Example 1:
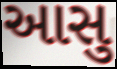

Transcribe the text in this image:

આસુ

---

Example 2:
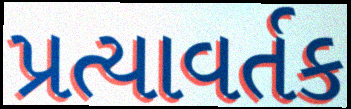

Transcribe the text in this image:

પ્રત્યાવર્તક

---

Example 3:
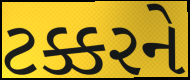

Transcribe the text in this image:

ટક્કરને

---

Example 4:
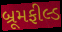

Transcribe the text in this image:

બ્રૂમફીલ્ડ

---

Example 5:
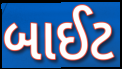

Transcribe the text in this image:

બાઈટ